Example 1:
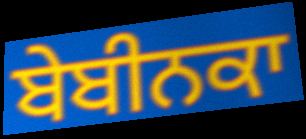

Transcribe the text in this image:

ਬੇਬੀਨਕਾ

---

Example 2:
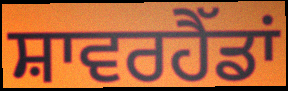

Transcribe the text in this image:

ਸ਼ਾਵਰਹੈੱਡਾਂ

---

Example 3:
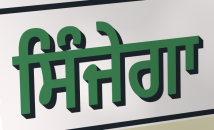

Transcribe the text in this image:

ਸਿੰਜੇਗਾ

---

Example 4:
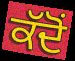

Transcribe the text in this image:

ਕੱਦੋਂ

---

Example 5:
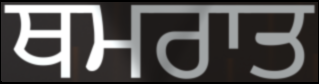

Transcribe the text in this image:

ਥਮਰਾਤ